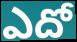
ఎదో